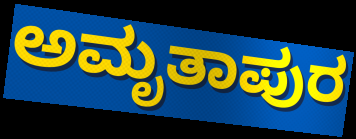
ಅಮೃತಾಪುರ